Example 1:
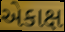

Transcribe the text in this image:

એકાક્ષ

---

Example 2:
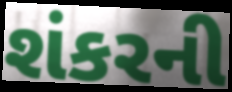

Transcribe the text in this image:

શંકરની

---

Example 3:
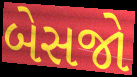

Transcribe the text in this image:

બેસજો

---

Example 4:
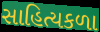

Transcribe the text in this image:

સાહિત્યકળા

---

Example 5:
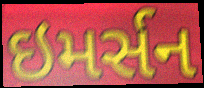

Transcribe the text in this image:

ઇમર્સન